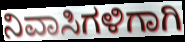
ನಿವಾಸಿಗಳಿಗಾಗಿ